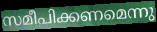
സമീപിക്കണമെന്നു